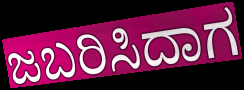
ಜಬರಿಸಿದಾಗ